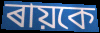
ৰায়কে